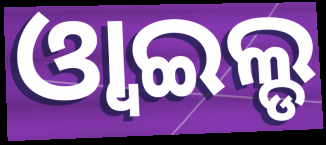
ଓ୍ବାଇଲ୍ଡ